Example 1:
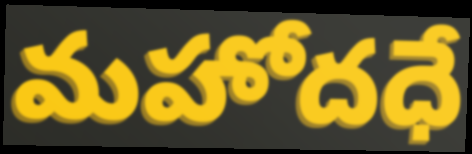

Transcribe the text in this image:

మహోదధే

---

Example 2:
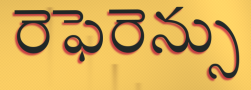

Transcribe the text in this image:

రెఫెరెన్సు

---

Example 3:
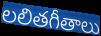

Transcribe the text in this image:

లలితగీతాలు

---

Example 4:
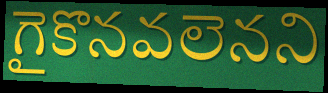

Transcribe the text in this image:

గైకొనవలెనని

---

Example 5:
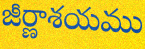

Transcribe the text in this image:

జీర్ణాశయము